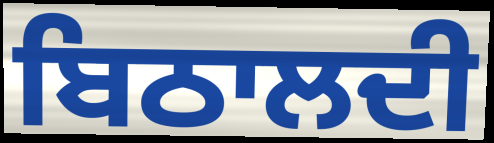
ਬਿਠਾਲਦੀ